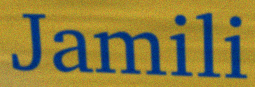
Jamili